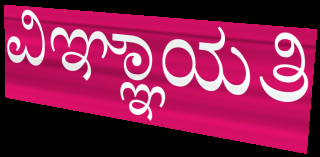
ವಿಞ್ಞಾಯತಿ